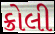
ક્રોલી